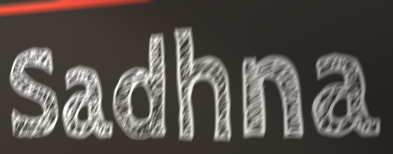
Sadhna